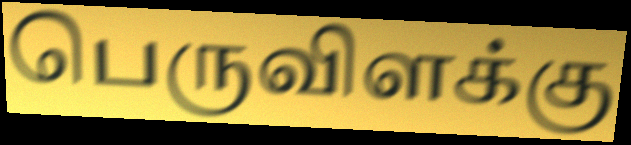
பெருவிளக்கு